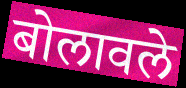
बोलावले